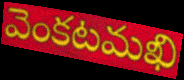
వెంకటమఖి